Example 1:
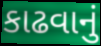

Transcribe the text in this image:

કાઢવાનું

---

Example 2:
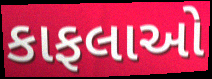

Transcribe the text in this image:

કાફલાઓ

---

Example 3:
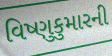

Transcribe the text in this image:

વિષ્ણુકુમારની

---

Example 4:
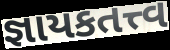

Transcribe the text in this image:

જ્ઞાયકતત્ત્વ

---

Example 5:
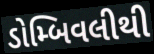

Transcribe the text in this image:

ડોમ્બિવલીથી